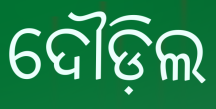
ଦୌଡ଼ିଲ